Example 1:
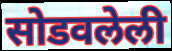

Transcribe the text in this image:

सोडवलेली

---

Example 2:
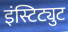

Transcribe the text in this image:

इंस्टिट्युट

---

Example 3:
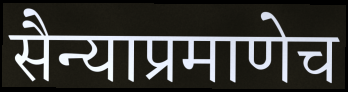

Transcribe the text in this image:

सैन्याप्रमाणेच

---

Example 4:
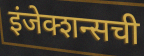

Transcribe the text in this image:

इंजेक्शन्सची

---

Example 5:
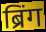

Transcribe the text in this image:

ब्रिंग